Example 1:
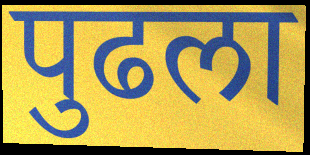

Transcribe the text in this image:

पुढला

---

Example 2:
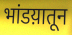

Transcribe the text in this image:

भांडय़ातून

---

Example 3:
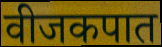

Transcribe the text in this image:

वीजकपात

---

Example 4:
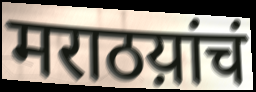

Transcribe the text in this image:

मराठय़ांचं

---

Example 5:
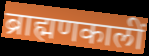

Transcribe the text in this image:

ब्राह्मणकालीं